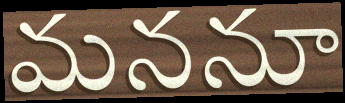
మననూ